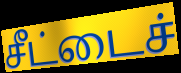
சீட்டைச்